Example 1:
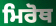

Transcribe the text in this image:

ਮਿਰੋਥ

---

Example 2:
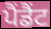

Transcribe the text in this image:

ਪੈਂਡੈਂਟ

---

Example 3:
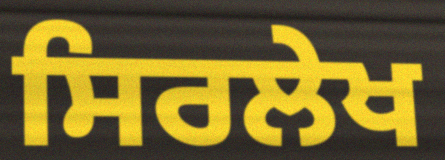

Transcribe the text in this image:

ਸਿਰਲੇਖ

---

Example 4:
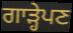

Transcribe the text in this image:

ਗਾੜ੍ਹੇਪਣ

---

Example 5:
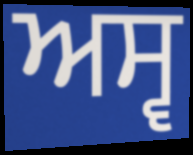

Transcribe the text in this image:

ਅਸ੍ਵ